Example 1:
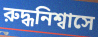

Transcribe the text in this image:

রুদ্ধনিশ্বাসে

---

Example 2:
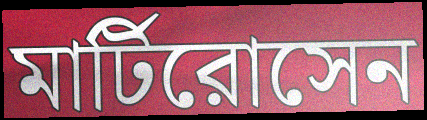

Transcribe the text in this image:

মার্টিরোসেন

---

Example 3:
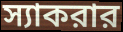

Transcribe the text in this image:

স্যাকরার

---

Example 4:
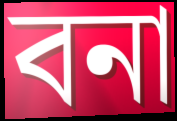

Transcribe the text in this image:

বনা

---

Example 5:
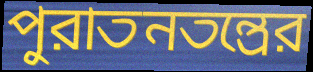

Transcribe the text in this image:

পুরাতনতন্ত্রের